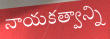
నాయకత్వాన్ని